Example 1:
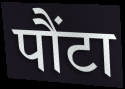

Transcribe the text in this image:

पौंटा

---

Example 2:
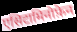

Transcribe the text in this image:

एसिटामिनोफ़ेन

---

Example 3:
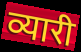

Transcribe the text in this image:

व्यारी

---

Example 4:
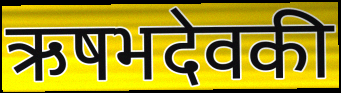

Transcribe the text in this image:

ऋषभदेवकी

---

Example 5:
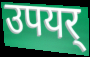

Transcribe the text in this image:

उपयर्